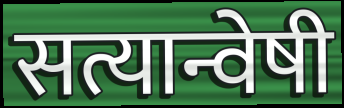
सत्यान्वेषी